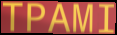
TPAMI